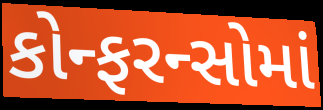
કોન્ફરન્સોમાં